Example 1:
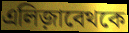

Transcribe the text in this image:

এলিজ়াবেথকে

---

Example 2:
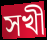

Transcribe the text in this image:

সখী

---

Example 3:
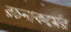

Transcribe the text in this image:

রচনাকর্মের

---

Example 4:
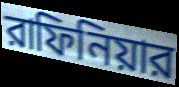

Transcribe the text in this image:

রাফিনিয়ার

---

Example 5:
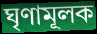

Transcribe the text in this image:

ঘৃণামূলক